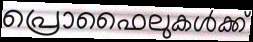
പ്രൊഫൈലുകൾക്ക്